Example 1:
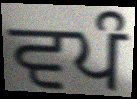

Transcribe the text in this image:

ਵਪੰ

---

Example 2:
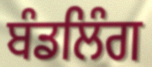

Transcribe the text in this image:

ਬੰਡਲਿੰਗ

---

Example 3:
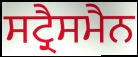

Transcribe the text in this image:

ਸਟ੍ਰੈਸਮੈਨ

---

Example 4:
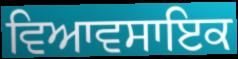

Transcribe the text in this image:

ਵਿਆਵਸਾਇਕ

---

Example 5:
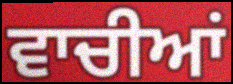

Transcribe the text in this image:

ਵਾਚੀਆਂ